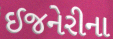
ઈજનેરીના